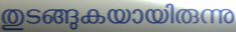
തുടങ്ങുകയായിരുന്നു